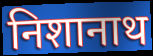
निशानाथ